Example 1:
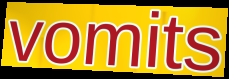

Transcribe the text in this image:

vomits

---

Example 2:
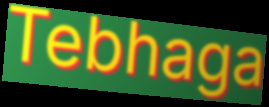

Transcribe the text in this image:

Tebhaga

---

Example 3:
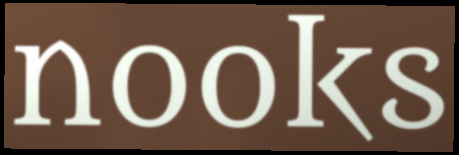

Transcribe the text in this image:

nooks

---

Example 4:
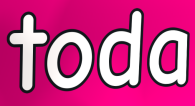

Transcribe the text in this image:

toda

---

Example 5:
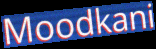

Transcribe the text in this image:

Moodkani